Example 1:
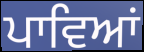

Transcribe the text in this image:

ਪਾਵਿਆਂ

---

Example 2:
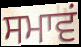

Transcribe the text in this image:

ਸਮਾਵਂ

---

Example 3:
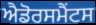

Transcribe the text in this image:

ਐਡੋਰਸਮੈਂਟਸ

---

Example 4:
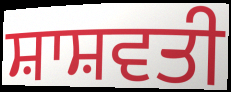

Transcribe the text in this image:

ਸ਼ਾਸ਼ਵਤੀ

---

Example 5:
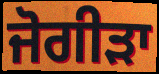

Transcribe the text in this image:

ਜੋਗੀੜਾ